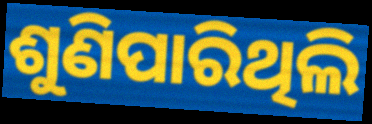
ଶୁଣିପାରିଥିଲି